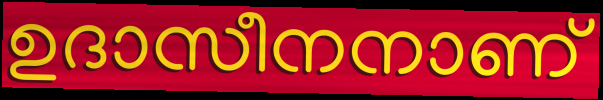
ഉദാസീനനാണ്